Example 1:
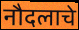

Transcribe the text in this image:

नौदलाचे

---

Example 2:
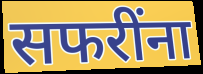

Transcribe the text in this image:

सफरींना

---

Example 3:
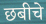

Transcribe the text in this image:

छबीचे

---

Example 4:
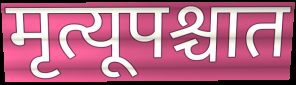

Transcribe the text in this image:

मृत्यूपश्चात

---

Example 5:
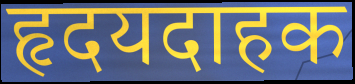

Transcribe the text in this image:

हृदयदाहक